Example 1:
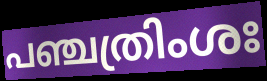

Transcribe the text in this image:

പഞ്ചത്രിംശഃ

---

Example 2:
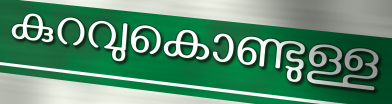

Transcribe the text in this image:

കുറവുകൊണ്ടുള്ള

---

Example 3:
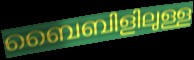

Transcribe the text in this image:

ബൈബിളിലുള്ള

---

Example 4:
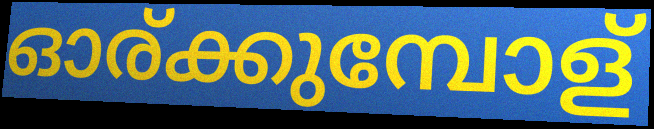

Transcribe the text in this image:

ഓര്ക്കുമ്പോള്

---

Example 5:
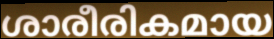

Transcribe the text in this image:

ശാരീരികമായ